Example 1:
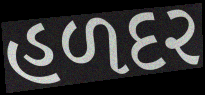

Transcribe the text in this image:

હળદર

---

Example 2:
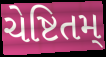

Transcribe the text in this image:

ચેષ્ટિતમ્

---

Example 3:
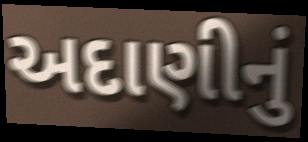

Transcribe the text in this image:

અદાણીનું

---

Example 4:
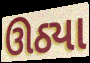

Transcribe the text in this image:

ઊઠ્યા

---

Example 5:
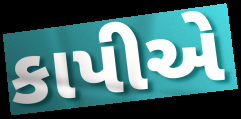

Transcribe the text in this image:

કાપીએ